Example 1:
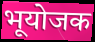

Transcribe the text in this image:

भूयोजक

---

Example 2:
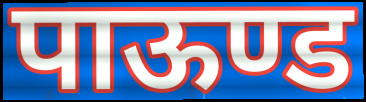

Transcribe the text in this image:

पाऊण्ड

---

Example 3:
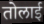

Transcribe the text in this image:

तोलाई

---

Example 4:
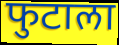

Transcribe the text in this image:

फुटाला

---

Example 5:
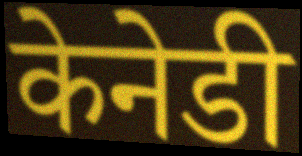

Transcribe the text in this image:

केनेडी